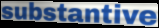
substantive